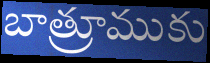
బాత్రూముకు